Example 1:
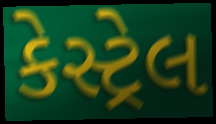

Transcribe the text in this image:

કેસ્ટ્રેલ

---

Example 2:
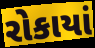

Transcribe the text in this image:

રોકાયાં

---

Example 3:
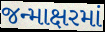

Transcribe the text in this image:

જન્માક્ષરમાં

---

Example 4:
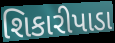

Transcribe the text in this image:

શિકારીપાડા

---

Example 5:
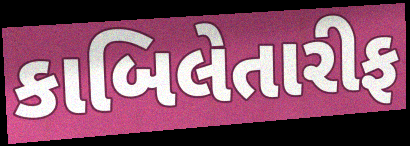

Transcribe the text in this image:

કાબિલેતારીફ